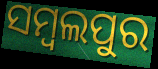
ସମ୍ବଲପୁର